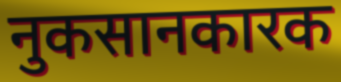
नुकसानकारक